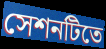
সেশনটিতে